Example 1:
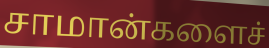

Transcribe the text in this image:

சாமான்களைச்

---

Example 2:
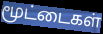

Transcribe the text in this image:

மூட்டைகள்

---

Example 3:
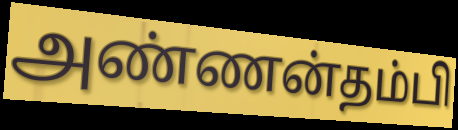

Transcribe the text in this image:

அண்ணன்தம்பி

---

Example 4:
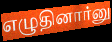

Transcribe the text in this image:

எழுதினார்னு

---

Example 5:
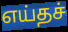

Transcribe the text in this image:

எய்தச்